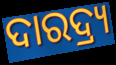
ଦାରଦ୍ର୍ୟ